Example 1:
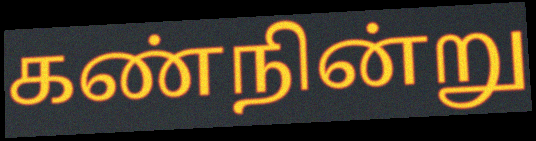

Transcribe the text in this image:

கண்நின்று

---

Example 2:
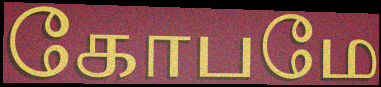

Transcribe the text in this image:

கோபமே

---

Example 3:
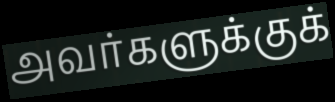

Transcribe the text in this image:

அவர்களுக்குக்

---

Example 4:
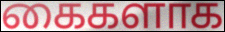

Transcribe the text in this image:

கைகளாக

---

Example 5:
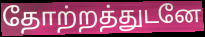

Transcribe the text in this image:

தோற்றத்துடனே